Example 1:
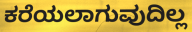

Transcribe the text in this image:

ಕರೆಯಲಾಗುವುದಿಲ್ಲ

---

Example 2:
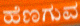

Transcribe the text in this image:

ಹೆಣಗುವ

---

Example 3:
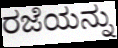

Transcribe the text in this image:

ರಜೆಯನ್ನು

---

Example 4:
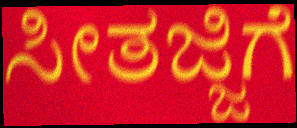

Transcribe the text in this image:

ಸೀತಜ್ಜಿಗೆ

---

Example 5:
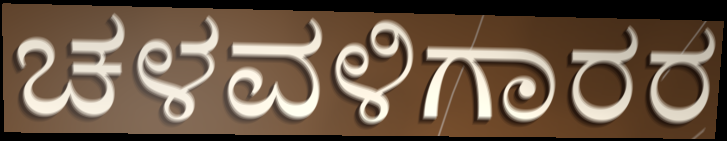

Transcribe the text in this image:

ಚಳವಳಿಗಾರರ